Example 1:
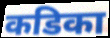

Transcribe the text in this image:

कडिका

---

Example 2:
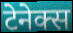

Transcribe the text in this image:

टेनेक्स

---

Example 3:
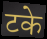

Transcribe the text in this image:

टके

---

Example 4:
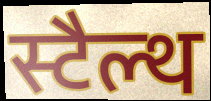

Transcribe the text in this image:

स्टैल्थ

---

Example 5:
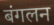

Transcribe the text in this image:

बंगलन